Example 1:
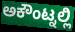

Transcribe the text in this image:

ಅಕೌಂಟ್ನಲ್ಲಿ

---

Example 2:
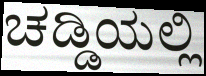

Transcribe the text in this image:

ಚಡ್ಡಿಯಲ್ಲಿ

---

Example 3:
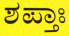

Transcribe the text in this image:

ಶಪ್ತಾಃ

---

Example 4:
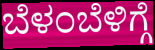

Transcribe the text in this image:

ಬೆಳಂಬೆಳಿಗ್ಗೆ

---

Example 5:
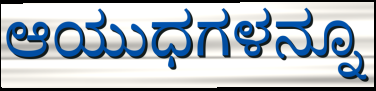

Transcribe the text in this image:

ಆಯುಧಗಳನ್ನೂ